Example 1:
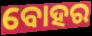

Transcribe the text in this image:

ବୋହର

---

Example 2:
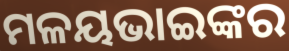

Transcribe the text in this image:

ମଳୟଭାଇଙ୍କର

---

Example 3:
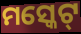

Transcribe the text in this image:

ମସ୍କେଟ୍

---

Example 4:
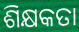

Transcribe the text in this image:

ଶିକ୍ଷକତା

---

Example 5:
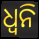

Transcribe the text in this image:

ଧ୍ୱନି